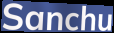
Sanchu